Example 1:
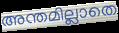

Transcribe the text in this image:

അന്തമില്ലാതെ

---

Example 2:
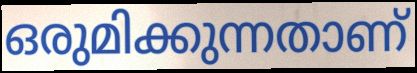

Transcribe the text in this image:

ഒരുമിക്കുന്നതാണ്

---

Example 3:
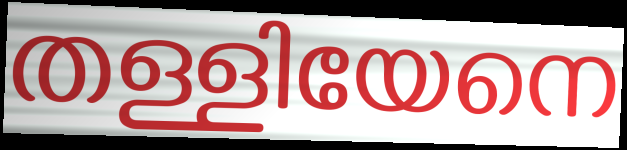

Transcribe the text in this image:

തള്ളിയേനെ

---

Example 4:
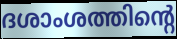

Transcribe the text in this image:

ദശാംശത്തിന്റെ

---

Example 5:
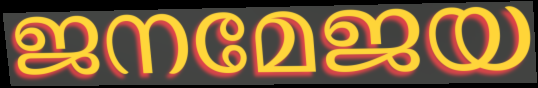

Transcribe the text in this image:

ജനമേജയ